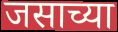
जसाच्या